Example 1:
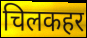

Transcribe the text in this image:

चिलकहर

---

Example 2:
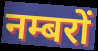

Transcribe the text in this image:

नम्बरों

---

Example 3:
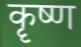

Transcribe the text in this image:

कॄष्ण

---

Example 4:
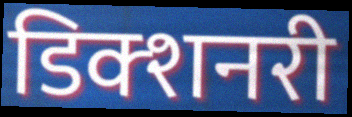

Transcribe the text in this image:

डिक्‍शनरी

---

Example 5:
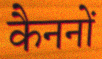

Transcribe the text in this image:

कैननों